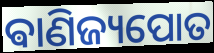
ଵାଣିଜ୍ୟପୋତ